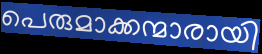
പെരുമാക്കന്മാരായി